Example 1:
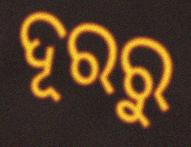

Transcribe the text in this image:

ଦୂରରୁ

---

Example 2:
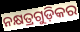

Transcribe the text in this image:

ନକ୍ଷତ୍ରଗୁଡ଼ିକର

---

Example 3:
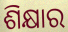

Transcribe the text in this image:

ଶିକ୍ଷାର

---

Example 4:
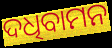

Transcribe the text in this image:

ଦଧିବାମନ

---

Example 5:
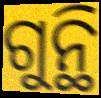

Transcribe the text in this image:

ଗୁନ୍ଥି